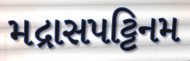
મદ્રાસપટ્ટિનમ